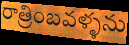
రాత్రింబవళ్ళను